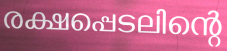
രക്ഷപ്പെടലിന്റെ